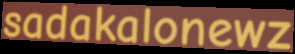
sadakalonewz